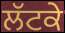
ਲੱਟਕੇ